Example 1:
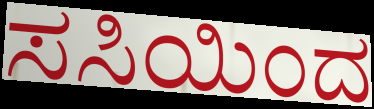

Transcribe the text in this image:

ಸಸಿಯಿಂದ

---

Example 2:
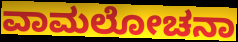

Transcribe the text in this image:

ವಾಮಲೋಚನಾ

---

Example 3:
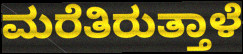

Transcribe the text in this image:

ಮರೆತಿರುತ್ತಾಳೆ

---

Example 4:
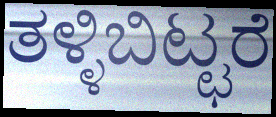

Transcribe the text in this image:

ತಳ್ಳಿಬಿಟ್ಟರೆ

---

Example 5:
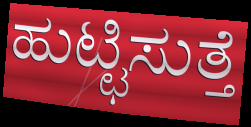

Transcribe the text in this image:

ಹುಟ್ಟಿಸುತ್ತೆ